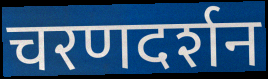
चरणदर्शन